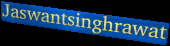
Jaswantsinghrawat